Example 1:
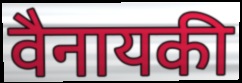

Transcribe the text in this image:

वैनायकी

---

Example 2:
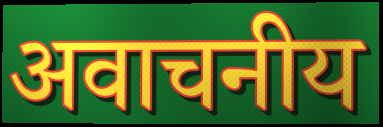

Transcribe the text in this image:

अवाचनीय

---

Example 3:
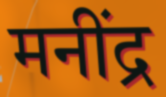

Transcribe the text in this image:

मनींद्र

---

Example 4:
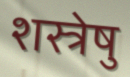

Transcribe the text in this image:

शस्त्रेषु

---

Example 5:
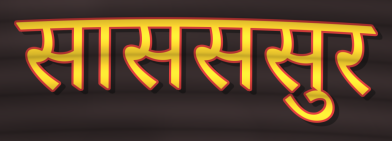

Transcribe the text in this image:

सासससुर